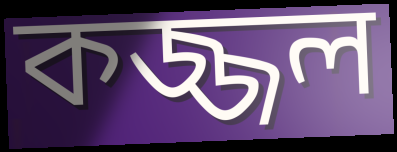
কজ্জল